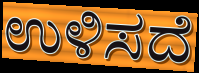
ಉಳಿಸದೆ